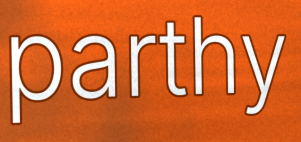
parthy